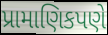
પ્રામાણિકપણે